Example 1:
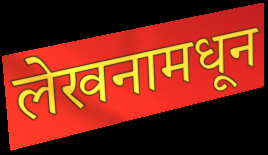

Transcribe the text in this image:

लेखनामधून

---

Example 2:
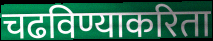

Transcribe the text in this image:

चढविण्याकरिता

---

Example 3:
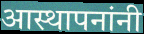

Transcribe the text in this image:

आस्थापनांनी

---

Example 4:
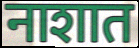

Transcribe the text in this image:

नाशात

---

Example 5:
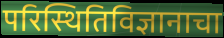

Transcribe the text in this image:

परिस्थितिविज्ञानाचा